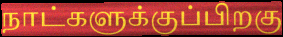
நாட்களுக்குப்பிறகு